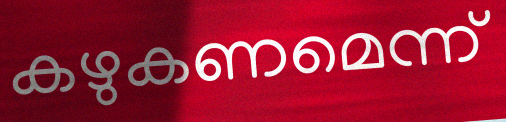
കഴുകണമെന്ന്